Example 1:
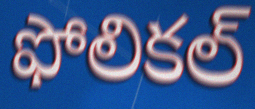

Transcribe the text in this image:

ఫోలికల్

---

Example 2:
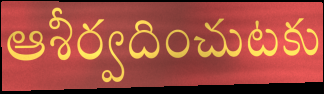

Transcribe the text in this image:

ఆశీర్వదించుటకు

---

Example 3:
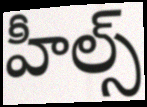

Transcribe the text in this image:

హీల్స్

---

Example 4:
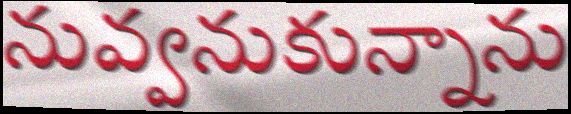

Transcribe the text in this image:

నువ్వనుకున్నాను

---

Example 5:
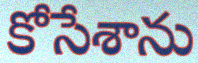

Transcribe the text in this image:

కోసేశాను